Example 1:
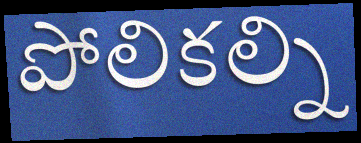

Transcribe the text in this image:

పోలికల్ని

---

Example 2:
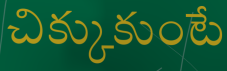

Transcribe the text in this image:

చిక్కుకుంటే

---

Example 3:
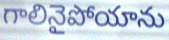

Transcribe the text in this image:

గాలినైపోయాను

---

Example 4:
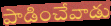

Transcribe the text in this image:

పాడించేవాడు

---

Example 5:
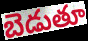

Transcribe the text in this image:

బెడుతూ